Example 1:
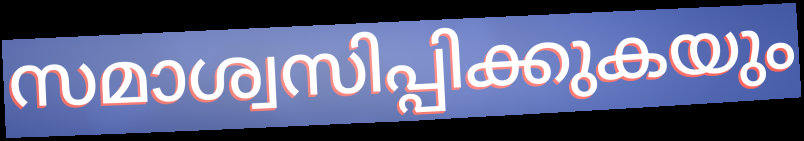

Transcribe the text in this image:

സമാശ്വസിപ്പിക്കുകയും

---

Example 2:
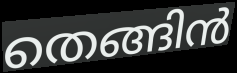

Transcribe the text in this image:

തെങ്ങിൻ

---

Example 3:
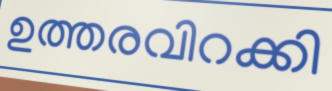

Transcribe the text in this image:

ഉത്തരവിറക്കി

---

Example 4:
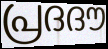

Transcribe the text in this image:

പ്രദദൗ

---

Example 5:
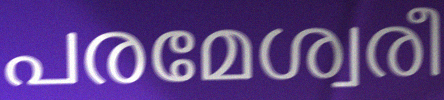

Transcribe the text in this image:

പരമേശ്വരീ